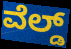
ವೆಲ್ಡ್